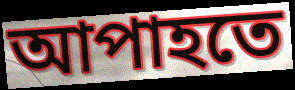
আপাহতে